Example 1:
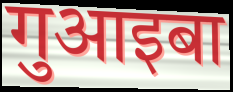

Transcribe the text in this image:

गुआइबा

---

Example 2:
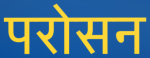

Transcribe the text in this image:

परोसन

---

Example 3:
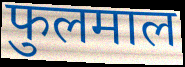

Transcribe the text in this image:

फुलमाल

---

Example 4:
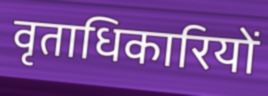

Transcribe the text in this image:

वृताधिकारियों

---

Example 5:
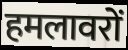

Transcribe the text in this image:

हमलावरों